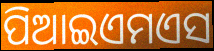
ପିଆଇଏମଏସ